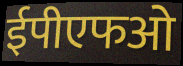
ईपीएफओ